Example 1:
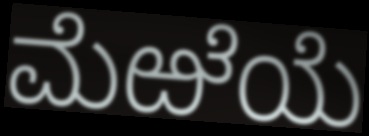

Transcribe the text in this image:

ಮೆಱೆಯೆ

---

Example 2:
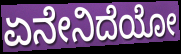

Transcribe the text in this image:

ಏನೇನಿದೆಯೋ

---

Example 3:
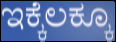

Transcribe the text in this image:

ಇಕ್ಕೆಲಕ್ಕೂ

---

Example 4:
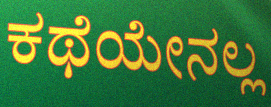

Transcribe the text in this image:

ಕಥೆಯೇನಲ್ಲ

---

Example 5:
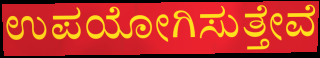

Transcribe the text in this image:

ಉಪಯೋಗಿಸುತ್ತೇವೆ